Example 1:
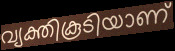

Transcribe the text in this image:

വ്യക്തികൂടിയാണ്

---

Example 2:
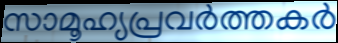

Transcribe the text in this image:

സാമൂഹ്യപ്രവർത്തകർ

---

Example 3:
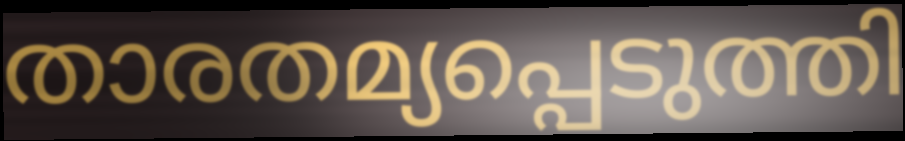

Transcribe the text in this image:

താരതമ്യപ്പെടുത്തി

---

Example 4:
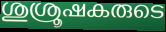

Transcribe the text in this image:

ശുശ്രൂഷകരുടെ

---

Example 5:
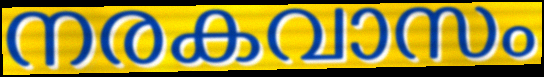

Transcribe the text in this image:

നരകവാസം